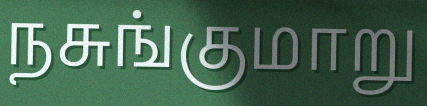
நசுங்குமாறு